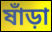
ষাঁড়া